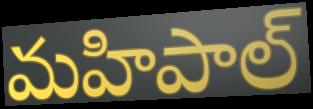
మహిపాల్